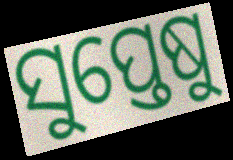
ସୁପ୍ତେଷୁ